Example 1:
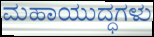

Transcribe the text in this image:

ಮಹಾಯುದ್ಧಗಳು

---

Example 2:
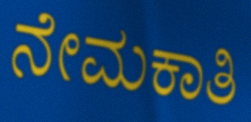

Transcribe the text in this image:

ನೇಮಕಾತಿ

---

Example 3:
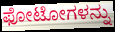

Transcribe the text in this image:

ಫೋಟೋಗಳನ್ನು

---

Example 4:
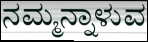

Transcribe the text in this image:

ನಮ್ಮನ್ನಾಳುವ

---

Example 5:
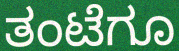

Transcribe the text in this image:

ತಂಟೆಗೂ